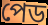
পেড